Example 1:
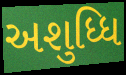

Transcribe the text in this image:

અશુધ્ધિ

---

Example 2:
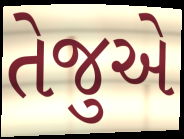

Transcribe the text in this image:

તેજુએ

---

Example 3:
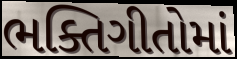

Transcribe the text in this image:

ભક્તિગીતોમાં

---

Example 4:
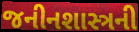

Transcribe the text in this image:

જનીનશાસ્ત્રની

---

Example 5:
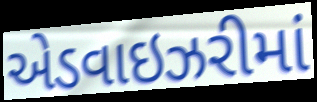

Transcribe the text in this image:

એડવાઇઝરીમાં